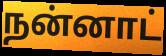
நன்னாட்